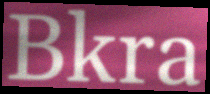
Bkra